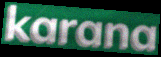
karana